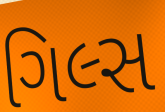
ગિલ્સ